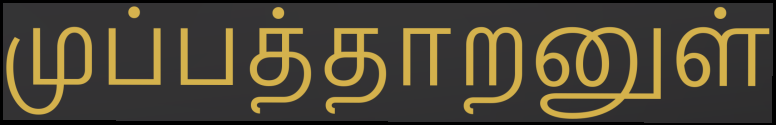
முப்பத்தாறனுள்